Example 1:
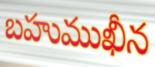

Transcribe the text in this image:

బహుముఖీన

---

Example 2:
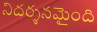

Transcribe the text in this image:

నిదర్శనమైంది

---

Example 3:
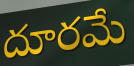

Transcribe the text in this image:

దూరమే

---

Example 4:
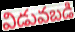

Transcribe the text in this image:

విడువబడి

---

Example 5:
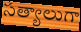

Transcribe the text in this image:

సత్యాలుగా